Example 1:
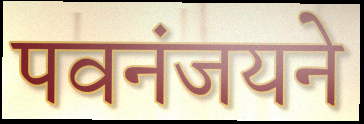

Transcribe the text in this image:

पवनंजयने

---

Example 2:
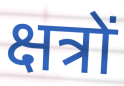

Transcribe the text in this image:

क्षत्रों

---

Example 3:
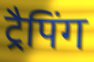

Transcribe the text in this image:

ट्रैपिंग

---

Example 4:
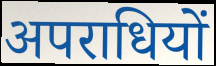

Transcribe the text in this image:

अपराधियों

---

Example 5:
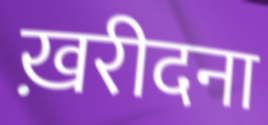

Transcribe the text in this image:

ख़रीदना